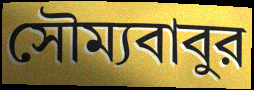
সৌম্যবাবুর